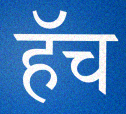
हॅच